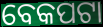
ବେକପଟା